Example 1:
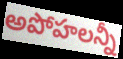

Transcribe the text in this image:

అపోహలన్నీ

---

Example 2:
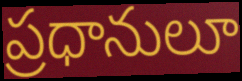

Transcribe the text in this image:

ప్రధానులూ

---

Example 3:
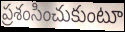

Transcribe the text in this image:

ప్రశంసించుకుంటూ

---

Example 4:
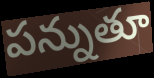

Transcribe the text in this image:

పన్నుతూ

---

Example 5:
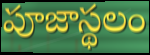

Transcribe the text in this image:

పూజాస్థలం